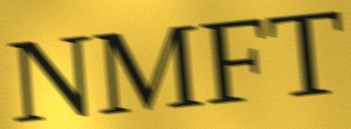
NMFT